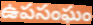
ఉపసంఘం